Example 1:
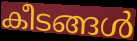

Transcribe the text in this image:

കീടങ്ങൾ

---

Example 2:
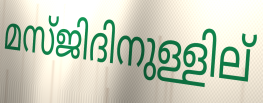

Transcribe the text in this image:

മസ്ജിദിനുള്ളില്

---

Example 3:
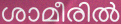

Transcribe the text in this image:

ശാമീരിൽ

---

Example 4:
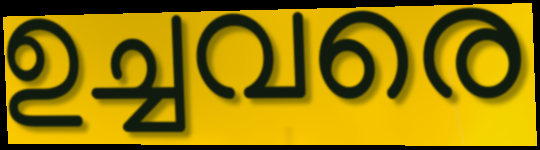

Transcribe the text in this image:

ഉച്ചവരെ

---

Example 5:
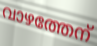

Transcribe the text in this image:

വാഴത്തേന്